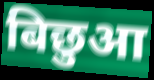
बिछुआ